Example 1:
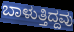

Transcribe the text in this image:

ಬಾಳುತ್ತಿದ್ದವು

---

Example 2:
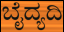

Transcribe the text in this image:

ಬೈದ್ಯದಿ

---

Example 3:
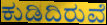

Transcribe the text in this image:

ಕುಡಿದಿರುವೆ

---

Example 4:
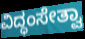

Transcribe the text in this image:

ವಿದ್ಧಂಸೇತ್ವಾ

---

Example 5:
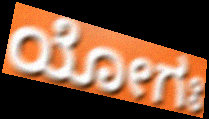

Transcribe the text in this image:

ಯೋಗಃ